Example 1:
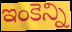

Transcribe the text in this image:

ఇంకెన్ని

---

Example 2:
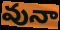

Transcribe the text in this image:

వునా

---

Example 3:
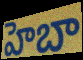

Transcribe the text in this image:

హెబా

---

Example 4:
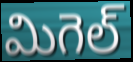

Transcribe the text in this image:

మిగెల్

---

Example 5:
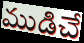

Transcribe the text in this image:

ముడిచే